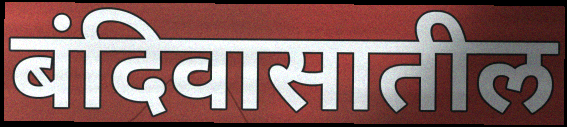
बंदिवासातील